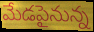
మేడపైనున్న